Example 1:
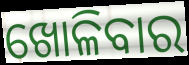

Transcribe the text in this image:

ଖୋଳିବାର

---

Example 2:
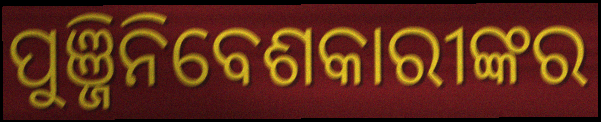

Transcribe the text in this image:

ପୁଞ୍ଜିନିବେଶକାରୀଙ୍କର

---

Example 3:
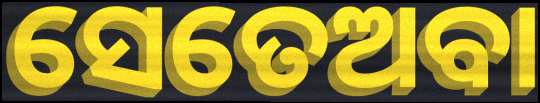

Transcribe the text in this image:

ସେତେଅବା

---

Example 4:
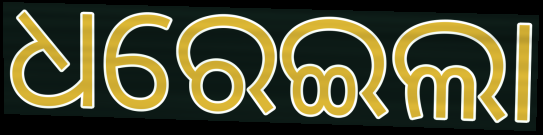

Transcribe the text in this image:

ଧରେଇଲା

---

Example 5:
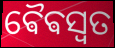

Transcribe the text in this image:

ଵୈଵସ୍ୱତ